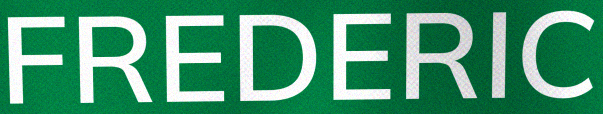
FREDERIC